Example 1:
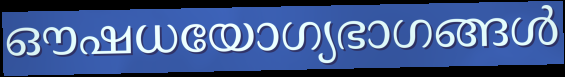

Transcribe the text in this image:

ഔഷധയോഗ്യഭാഗങ്ങൾ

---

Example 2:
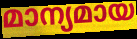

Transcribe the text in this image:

മാന്യമായ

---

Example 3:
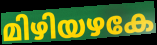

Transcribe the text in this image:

മിഴിയഴകേ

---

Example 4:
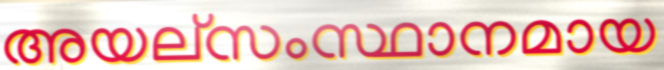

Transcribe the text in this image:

അയല്സംസ്ഥാനമായ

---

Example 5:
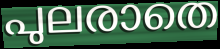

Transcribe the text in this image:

പുലരാതെ